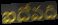
ఐదోవది